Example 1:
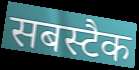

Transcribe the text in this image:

सबस्टैक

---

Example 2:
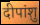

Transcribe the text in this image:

दीपांशु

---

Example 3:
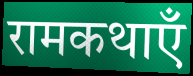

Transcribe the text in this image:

रामकथाएँ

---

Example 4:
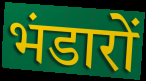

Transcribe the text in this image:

भंडारों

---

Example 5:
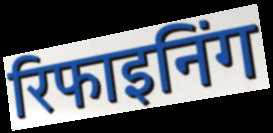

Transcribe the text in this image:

रिफाइनिंग